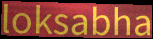
loksabha